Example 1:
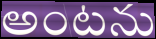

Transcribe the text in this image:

అంటను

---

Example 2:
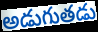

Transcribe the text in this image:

అడుగుతడు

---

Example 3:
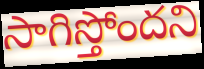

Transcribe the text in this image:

సాగిస్తోందని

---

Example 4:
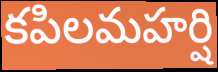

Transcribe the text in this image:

కపిలమహర్షి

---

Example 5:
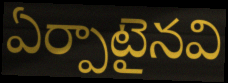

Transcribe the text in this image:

ఏర్పాటైనవి